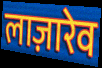
लाज़ारेव